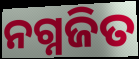
ନଗ୍ନଜିତ